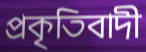
প্ৰকৃতিবাদী